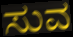
ಸುವ